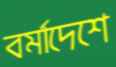
বর্মাদেশে